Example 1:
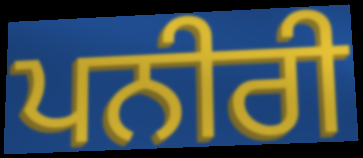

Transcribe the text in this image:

ਪਨੀਰੀ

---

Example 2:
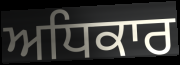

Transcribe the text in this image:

ਅਧਿਕਾਰ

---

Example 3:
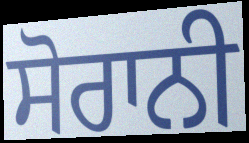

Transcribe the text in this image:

ਸੋਰਾਨੀ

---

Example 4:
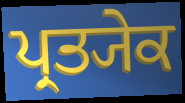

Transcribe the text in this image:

ਪ੍ਰਤ੍ਯੇਕ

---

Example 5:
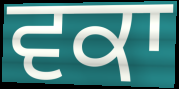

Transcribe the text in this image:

ਵਕਾ